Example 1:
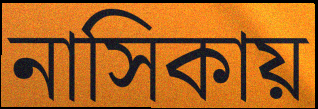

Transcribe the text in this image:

নাসিকায়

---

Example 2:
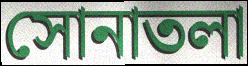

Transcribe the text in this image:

সোনাতলা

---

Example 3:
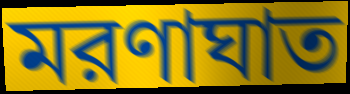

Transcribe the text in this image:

মরণাঘাত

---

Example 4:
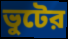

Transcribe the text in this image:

ভুটের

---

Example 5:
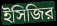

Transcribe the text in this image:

ইসিজির